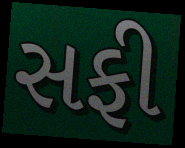
સફી